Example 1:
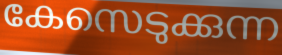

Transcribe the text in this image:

കേസെടുക്കുന്ന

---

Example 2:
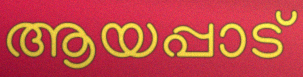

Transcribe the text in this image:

ആയപ്പാട്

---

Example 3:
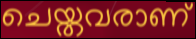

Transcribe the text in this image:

ചെയ്തവരാണ്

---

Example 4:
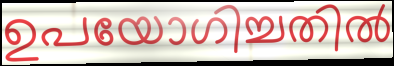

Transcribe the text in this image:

ഉപയോഗിച്ചതിൽ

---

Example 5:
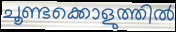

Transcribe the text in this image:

ചൂണ്ടക്കൊളുത്തിൽ